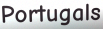
Portugals